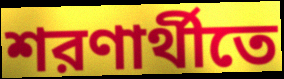
শরণার্থীতে